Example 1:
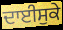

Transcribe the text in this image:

ਦਾਈਸੁਕੇ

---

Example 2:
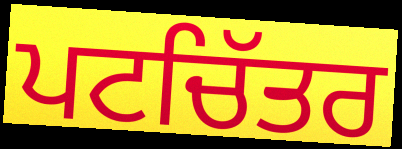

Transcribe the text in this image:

ਪਟਚਿੱਤਰ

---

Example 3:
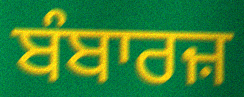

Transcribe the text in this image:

ਬੰਬਾਰਜ਼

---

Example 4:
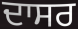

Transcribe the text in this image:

ਦਾਸਰ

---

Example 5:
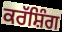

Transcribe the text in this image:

ਕਰੱਸ਼ਿੰਗ